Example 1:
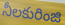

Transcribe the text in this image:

నీలకురింజి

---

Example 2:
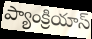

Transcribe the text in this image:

ప్యాంక్రియాస్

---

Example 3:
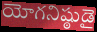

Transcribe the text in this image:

యోగనిష్ఠుడై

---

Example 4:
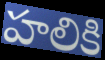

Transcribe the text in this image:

హలికి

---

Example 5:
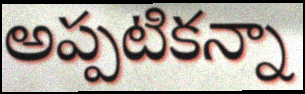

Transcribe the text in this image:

అప్పటికన్నా